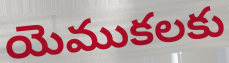
యెముకలకు